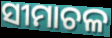
ସୀମାଚଳ